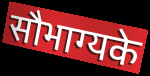
सौभाग्यके